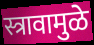
स्त्रावामुळे